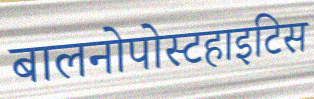
बालनोपोस्टहाइटिस